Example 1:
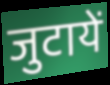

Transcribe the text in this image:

जुटायें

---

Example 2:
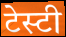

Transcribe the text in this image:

टेस्‍टी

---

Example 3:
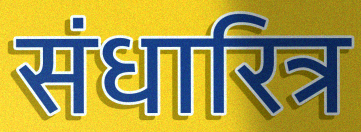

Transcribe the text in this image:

संधारित्र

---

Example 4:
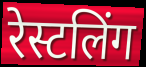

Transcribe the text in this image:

रेस्टलिंग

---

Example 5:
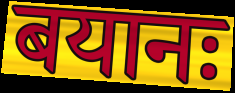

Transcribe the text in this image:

बयानः